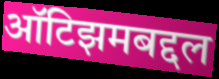
ऑटिझमबद्दल